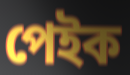
পেইক